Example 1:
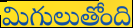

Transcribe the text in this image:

మిగులుతోంది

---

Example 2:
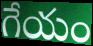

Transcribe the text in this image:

గేయం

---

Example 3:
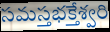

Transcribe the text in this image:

సమస్తభక్తేశ్వరి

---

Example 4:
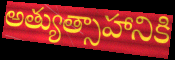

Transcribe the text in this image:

అత్యుత్సాహానికి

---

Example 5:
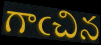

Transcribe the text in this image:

గాఁచిన